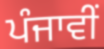
ਪੰਜਾਵੀਂ